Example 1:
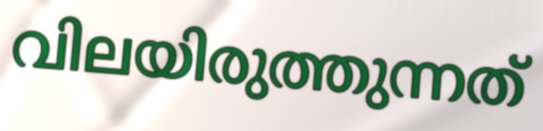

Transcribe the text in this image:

വിലയിരുത്തുന്നത്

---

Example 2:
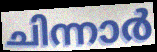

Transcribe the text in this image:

ചിന്നാർ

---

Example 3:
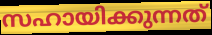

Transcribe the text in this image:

സഹായിക്കുന്നത്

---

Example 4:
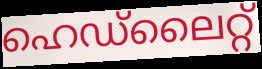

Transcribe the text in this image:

ഹെഡ്ലൈറ്റ്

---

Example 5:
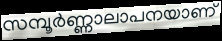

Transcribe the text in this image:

സമ്പൂർണ്ണാലാപനയാണ്